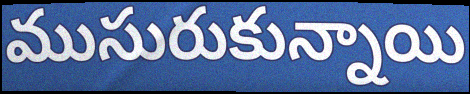
ముసురుకున్నాయి